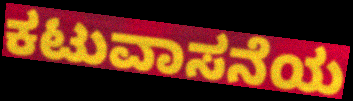
ಕಟುವಾಸನೆಯ